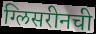
ग्लिसरीनची